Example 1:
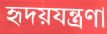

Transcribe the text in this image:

হৃদয়যন্ত্রণা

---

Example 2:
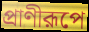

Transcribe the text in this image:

প্রাণীরূপে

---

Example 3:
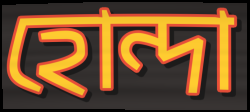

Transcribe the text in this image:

হোন্দা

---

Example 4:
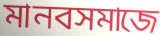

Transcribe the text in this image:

মানবসমাজে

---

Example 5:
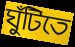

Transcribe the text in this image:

ঘুঁটিতে